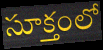
సూక్తంలో